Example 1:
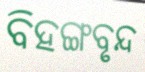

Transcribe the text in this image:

ବିହଙ୍ଗବୃନ୍ଦ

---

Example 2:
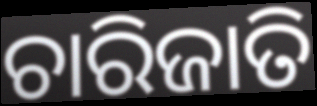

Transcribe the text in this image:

ଚାରିଜାତି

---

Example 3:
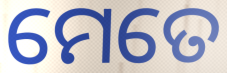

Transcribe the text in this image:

ମେତେ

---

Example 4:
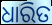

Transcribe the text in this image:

ଧାରିତ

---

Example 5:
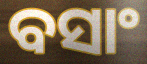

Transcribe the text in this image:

ବସାଂ